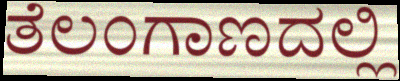
ತೆಲಂಗಾಣದಲ್ಲಿ